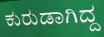
ಕುರುಡಾಗಿದ್ದ